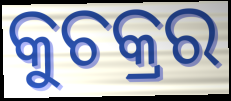
କୁଚକ୍ରର